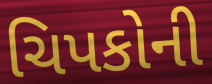
ચિપકોની